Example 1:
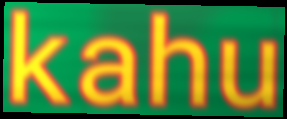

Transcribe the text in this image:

kahu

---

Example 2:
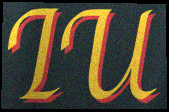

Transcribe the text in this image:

IU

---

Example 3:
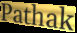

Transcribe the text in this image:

Pathak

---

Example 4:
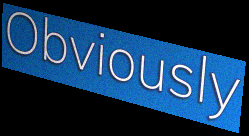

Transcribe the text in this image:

Obviously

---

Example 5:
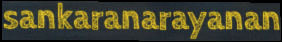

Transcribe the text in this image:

sankaranarayanan